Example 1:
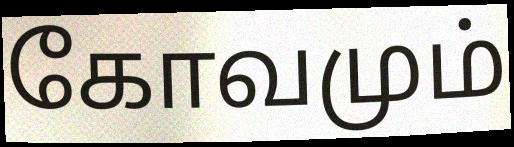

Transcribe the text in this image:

கோவமும்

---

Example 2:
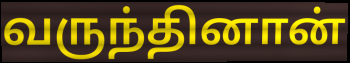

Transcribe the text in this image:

வருந்தினான்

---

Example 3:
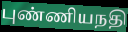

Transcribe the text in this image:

புண்ணியநதி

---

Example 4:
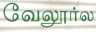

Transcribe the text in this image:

வேலூர்ல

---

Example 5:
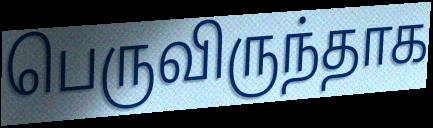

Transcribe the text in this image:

பெருவிருந்தாக